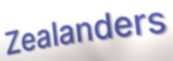
Zealanders